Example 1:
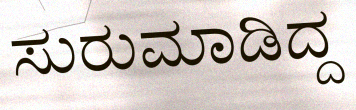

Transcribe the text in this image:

ಸುರುಮಾಡಿದ್ದ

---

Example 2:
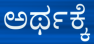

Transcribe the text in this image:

ಅರ್ಥಕ್ಕೆ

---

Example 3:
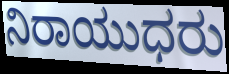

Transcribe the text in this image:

ನಿರಾಯುಧರು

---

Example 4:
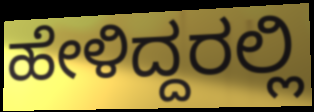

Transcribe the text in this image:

ಹೇಳಿದ್ದರಲ್ಲಿ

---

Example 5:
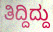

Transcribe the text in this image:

ತಿದ್ದಿದ್ದು